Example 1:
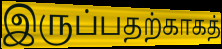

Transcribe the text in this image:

இருப்பதற்காகத்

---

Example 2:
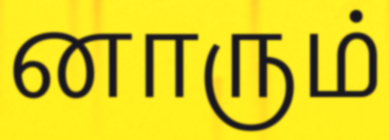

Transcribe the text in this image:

னாரும்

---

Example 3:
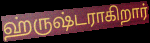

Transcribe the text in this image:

ஹ்ருஷ்டராகிறார்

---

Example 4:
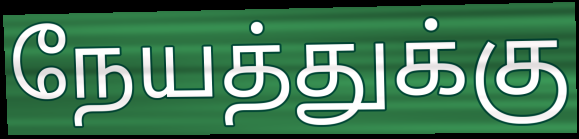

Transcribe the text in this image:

நேயத்துக்கு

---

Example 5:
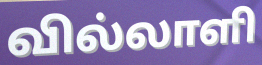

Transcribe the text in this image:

வில்லாளி